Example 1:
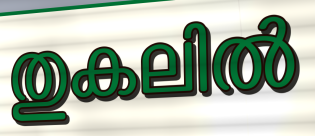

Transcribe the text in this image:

തുകലിൽ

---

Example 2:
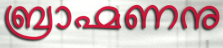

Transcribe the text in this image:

ബ്രാഹ്മണനു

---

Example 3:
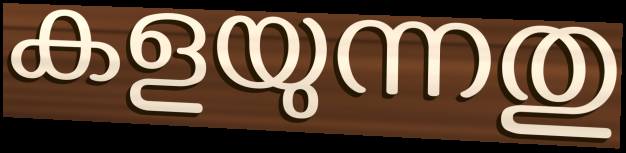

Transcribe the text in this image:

കളയുന്നതു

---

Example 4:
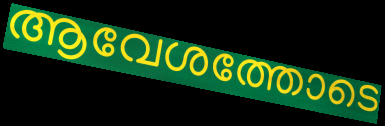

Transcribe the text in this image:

ആവേശത്തോടെ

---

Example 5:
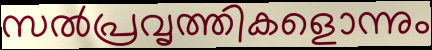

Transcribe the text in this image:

സൽപ്രവൃത്തികളൊന്നും